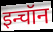
इन्चॉन